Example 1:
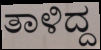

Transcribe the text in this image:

ತಾಳಿದ್ದ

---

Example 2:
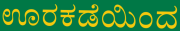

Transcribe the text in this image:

ಊರಕಡೆಯಿಂದ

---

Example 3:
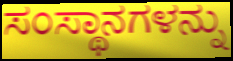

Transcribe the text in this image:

ಸಂಸ್ಥಾನಗಳನ್ನು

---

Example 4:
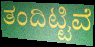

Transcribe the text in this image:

ತಂದಿಟ್ಟಿವೆ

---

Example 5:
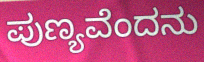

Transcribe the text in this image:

ಪುಣ್ಯವೆಂದನು